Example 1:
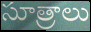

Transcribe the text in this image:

సూత్రాలు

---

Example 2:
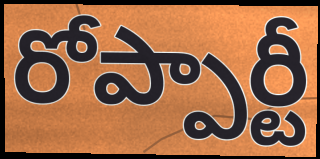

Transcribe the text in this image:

రోప్పార్టీ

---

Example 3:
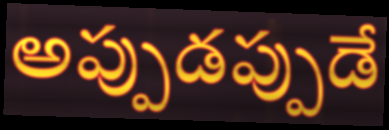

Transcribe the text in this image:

అప్పుడప్పుడే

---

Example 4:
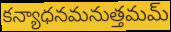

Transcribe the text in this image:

కన్యాధనమనుత్తమమ్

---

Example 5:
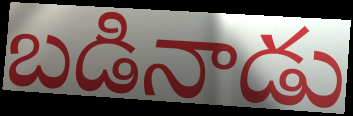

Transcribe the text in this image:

బడినాడు